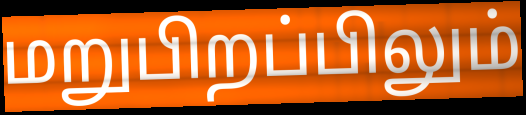
மறுபிறப்பிலும்